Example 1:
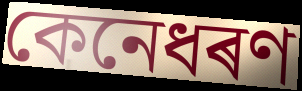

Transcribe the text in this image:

কেনেধৰণ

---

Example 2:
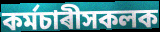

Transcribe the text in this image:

কৰ্মচাৰীসকলক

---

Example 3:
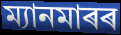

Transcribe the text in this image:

ম্যানমাৰৰ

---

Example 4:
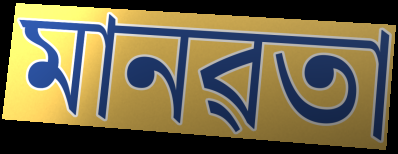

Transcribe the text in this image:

মানৱতা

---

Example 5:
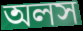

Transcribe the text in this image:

অলস